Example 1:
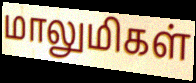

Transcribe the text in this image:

மாலுமிகள்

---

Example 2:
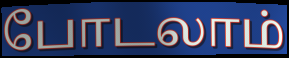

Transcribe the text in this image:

போடலாம்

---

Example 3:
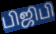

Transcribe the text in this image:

பிஜிபி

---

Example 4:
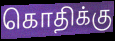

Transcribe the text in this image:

கொதிக்கு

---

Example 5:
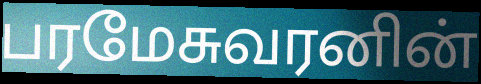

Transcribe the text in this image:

பரமேசுவரனின்